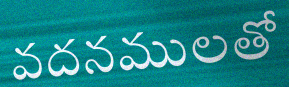
వదనములతో